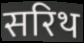
सरिथ